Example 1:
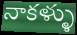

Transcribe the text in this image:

నాకళ్ళు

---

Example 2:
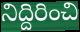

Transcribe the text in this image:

నిద్దిరించి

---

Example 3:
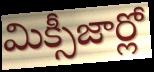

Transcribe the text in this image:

మిక్సీజార్లో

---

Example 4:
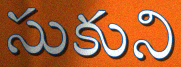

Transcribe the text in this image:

సుకుని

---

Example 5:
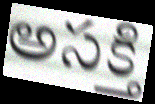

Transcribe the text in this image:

అసక్తి